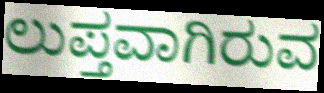
ಲುಪ್ತವಾಗಿರುವ